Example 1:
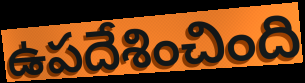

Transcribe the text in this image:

ఉపదేశించింది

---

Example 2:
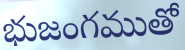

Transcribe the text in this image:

భుజంగముతో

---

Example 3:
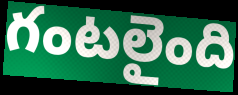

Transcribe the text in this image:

గంటలైంది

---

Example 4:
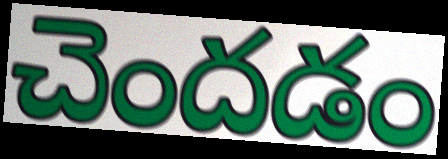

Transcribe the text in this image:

చెందడం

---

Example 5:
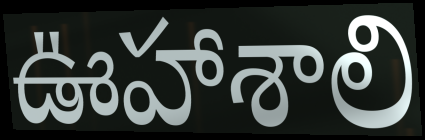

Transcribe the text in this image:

ఊహాశాలి